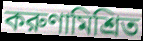
করুণামিশ্রিত